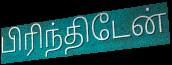
பிரிந்திடேன்